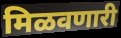
मिळवणारी